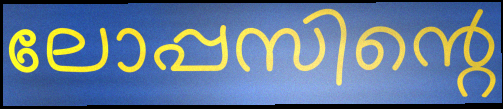
ലോപ്പസിന്റെ